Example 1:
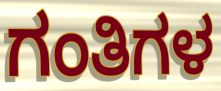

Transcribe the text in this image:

ಗಂತಿಗಳ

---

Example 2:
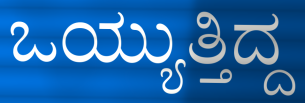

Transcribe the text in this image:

ಒಯ್ಯುತ್ತಿದ್ದ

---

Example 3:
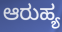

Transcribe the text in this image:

ಆರುಹ್ಯ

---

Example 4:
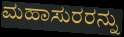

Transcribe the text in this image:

ಮಹಾಸುರರನ್ನು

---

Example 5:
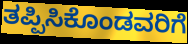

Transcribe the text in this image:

ತಪ್ಪಿಸಿಕೊಂಡವರಿಗೆ